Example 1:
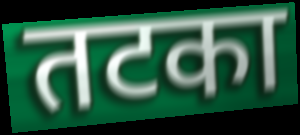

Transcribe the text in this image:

तटका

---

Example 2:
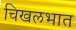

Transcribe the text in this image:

चिखलभात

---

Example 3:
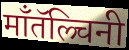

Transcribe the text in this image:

माँतॅल्चिनी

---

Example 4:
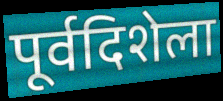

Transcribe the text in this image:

पूर्वदिशेला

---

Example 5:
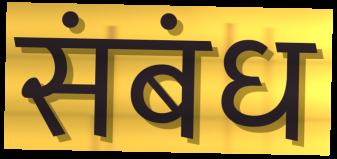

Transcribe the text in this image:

संबंध